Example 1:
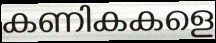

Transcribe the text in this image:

കണികകളെ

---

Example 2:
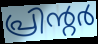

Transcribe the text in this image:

പ്രിന്റർ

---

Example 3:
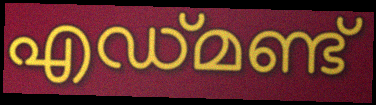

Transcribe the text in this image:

എഡ്മണ്ട്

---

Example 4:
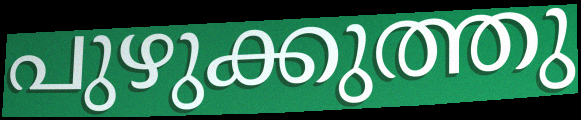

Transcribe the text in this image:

പുഴുക്കുത്തു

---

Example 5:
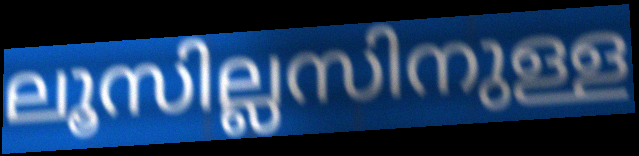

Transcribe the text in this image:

ലൂസില്ലസിനുള്ള